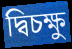
দ্বিচক্ষু